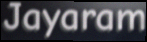
Jayaram